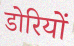
डोरियों